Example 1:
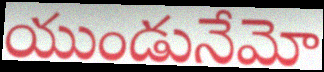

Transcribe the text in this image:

యుండునేమో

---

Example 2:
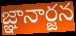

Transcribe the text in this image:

జ్ఞానార్జన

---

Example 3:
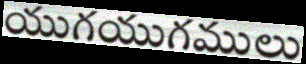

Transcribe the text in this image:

యుగయుగములు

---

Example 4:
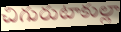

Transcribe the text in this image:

చిగురుటాకుల్లా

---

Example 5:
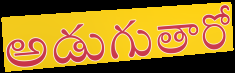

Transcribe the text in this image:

అడుగుతారో